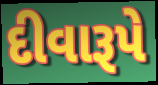
દીવારૂપે